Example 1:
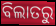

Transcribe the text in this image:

ବିଲାତରୁ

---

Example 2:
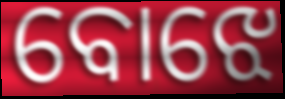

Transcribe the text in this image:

ବୋଝେ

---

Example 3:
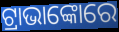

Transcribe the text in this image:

ଟ୍ରାଭାଙ୍କୋରେ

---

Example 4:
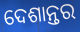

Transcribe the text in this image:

ଦେଶାନ୍ତର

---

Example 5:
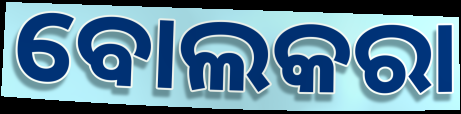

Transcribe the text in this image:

ବୋଲକରା